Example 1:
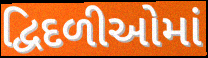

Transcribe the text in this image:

દ્વિદળીઓમાં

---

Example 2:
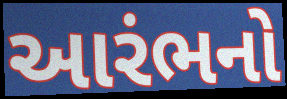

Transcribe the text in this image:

આરંભનો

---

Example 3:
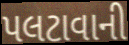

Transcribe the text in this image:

પલટાવાની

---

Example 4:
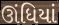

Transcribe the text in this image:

ઊંધિયાં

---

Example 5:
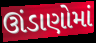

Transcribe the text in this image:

ઊંડાણોમાં